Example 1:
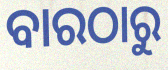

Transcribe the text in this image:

ବାରଠାରୁ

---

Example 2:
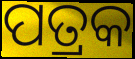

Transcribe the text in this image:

ପତ୍ରକ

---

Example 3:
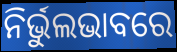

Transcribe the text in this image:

ନିର୍ଭୁଲଭାବରେ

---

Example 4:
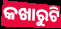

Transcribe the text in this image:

କଖାରୁଟି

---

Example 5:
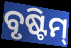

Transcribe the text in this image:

ବୃଷ୍ଟିମ୍